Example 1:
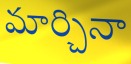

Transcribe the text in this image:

మార్చినా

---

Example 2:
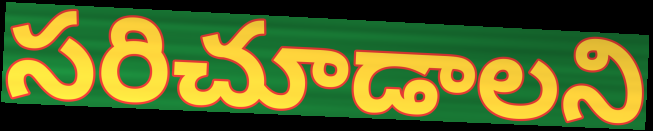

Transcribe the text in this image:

సరిచూడాలని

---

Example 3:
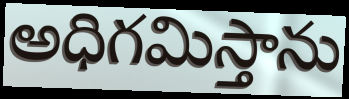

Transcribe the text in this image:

అధిగమిస్తాను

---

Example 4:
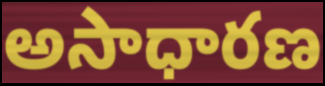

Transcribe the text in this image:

అసాధారణ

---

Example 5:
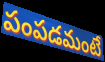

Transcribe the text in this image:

పంపడమంటే